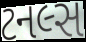
ટનલ્સ